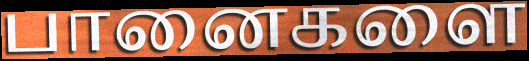
பானைகளை